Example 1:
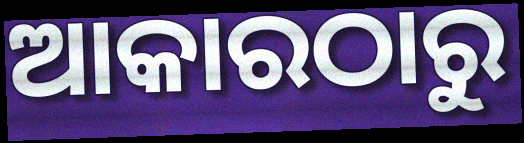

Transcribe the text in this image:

ଆକାରଠାରୁ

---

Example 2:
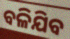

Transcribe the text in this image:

ବଳିଯିବ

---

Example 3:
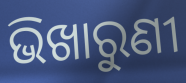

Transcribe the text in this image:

ଭିଖାରୁଣୀ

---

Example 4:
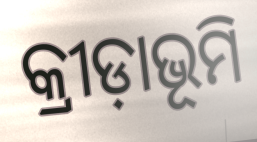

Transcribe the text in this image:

କ୍ରୀଡ଼ାଭୂମି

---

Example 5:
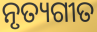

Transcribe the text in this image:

ନୃତ୍ୟଗୀତ